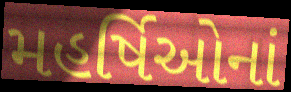
મહર્ષિઓનાં